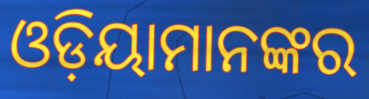
ଓଡ଼ିୟାମାନଙ୍କର